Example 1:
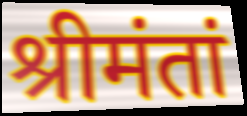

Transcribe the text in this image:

श्रीमंतां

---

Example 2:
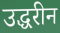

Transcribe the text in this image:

उद्धरीन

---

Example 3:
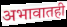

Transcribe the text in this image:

अभावातही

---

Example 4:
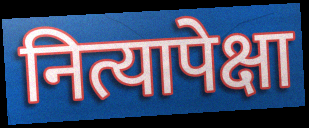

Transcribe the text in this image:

नित्यापेक्षा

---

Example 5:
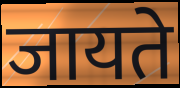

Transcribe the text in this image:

जायते